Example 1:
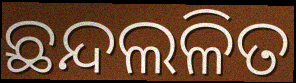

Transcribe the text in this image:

ଛନ୍ଦଲଳିତ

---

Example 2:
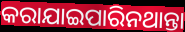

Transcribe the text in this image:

କରାଯାଇପାରିନଥାନ୍ତା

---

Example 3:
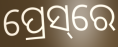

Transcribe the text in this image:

ପ୍ରେସ୍‌ରେ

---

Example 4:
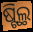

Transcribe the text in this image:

ଷ୍ଟିଲ୍ଥ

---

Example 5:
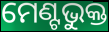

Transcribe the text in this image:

ମେଣ୍ଟଭୁକ୍ତ